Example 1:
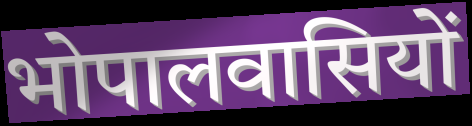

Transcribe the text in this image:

भोपालवासियों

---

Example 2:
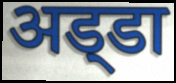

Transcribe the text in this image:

अड्‌डा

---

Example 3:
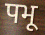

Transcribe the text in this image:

पभू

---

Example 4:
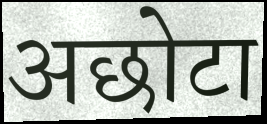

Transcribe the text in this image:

अछोटा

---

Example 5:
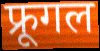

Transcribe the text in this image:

फ्रूगल